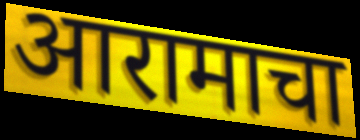
आरामाचा